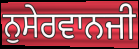
ਨੁਸੇਰਵਾਨਜੀ